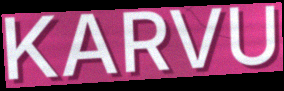
KARVU